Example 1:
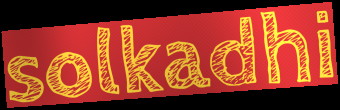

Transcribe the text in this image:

solkadhi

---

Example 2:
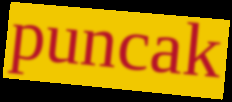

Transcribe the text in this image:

puncak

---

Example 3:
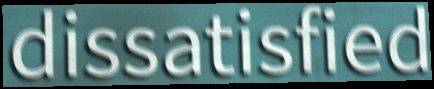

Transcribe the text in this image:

dissatisfied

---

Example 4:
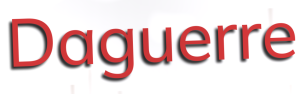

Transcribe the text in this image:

Daguerre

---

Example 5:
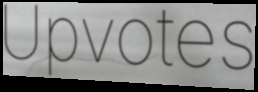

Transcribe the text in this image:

Upvotes